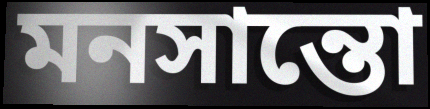
মনসান্তো